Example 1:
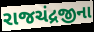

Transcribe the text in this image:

રાજચંદ્રજીના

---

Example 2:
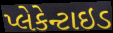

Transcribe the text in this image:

પ્લેકેન્ટાઇડ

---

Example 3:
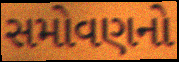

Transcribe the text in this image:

સમોવણનો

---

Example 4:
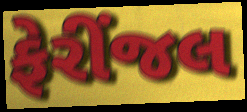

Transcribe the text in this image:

ફેરીંજલ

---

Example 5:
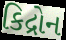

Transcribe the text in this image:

કિદ્રોન